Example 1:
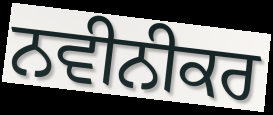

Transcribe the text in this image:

ਨਵੀਨੀਕਰ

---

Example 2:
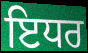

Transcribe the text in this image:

ਇਧਰ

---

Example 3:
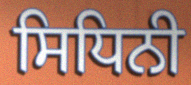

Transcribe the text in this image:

ਸਿਧਿਨੀ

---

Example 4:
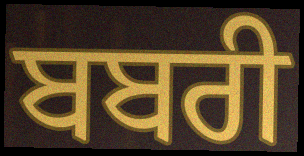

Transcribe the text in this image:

ਬਬਰੀ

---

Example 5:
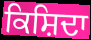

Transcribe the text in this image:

ਕਿਸ਼ਿਦਾ